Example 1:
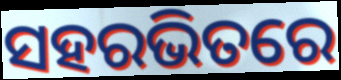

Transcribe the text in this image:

ସହରଭିତରେ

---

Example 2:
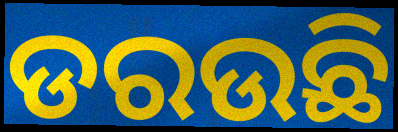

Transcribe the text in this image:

ଡରଉଛି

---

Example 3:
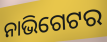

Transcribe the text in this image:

ନାଭିଗେଟର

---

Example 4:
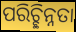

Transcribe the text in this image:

ପରିଚ୍ଛିନ୍ନତା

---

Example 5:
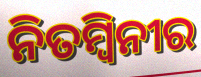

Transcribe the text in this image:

ନିତମ୍ବିନୀର